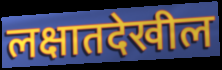
लक्षातदेखील